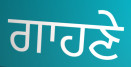
ਗਾਹਣੇ